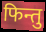
फिन्तु